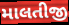
માલતીજી